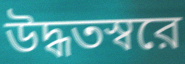
উদ্ধতস্বরে